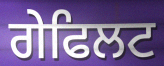
ਗੇਫਿਲਟ